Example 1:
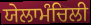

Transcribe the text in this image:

ਯੇਲਾਮੰਚਿਲੀ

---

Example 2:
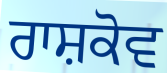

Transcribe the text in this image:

ਰਾਸ਼ਕੋਵ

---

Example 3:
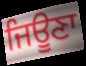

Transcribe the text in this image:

ਜਿਊਣਾ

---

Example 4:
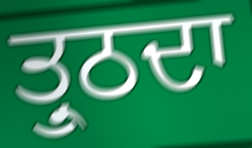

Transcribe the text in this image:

ਤ੍ਰੁਠਦਾ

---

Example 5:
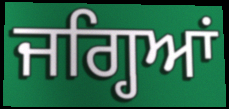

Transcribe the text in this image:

ਜਗ੍ਹਿਆਂ